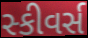
સ્કીવર્સ